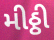
મીઠ્ઠી